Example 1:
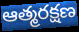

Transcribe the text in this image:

ఆత్మరక్షణ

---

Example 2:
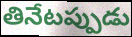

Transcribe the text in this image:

తినేటప్పుడు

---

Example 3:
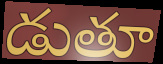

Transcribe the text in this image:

డుతూ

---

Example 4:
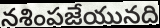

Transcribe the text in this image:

నశింపజేయునది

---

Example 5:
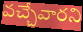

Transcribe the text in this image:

వచ్చేవారని